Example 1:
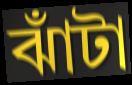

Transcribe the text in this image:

ঝাঁটা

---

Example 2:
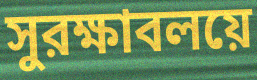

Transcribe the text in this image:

সুরক্ষাবলয়ে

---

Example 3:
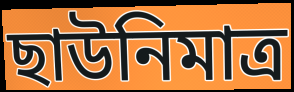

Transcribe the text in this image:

ছাউনিমাত্র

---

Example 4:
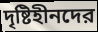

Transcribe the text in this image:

দৃষ্টিহীনদের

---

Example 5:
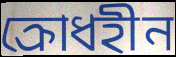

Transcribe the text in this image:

ক্রোধহীন